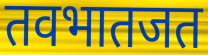
तवभातजत